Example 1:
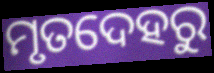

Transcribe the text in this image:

ମୃତଦେହରୁ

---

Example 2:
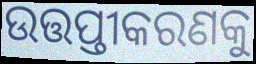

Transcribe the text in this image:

ଉତ୍ତପ୍ତୀକରଣକୁ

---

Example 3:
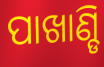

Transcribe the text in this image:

ପାଖାଣ୍ଡି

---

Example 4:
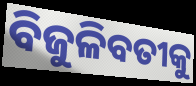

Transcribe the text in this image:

ବିଜୁଳିବତୀକୁ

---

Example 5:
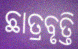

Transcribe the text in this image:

ଛାତ୍ରବୃତ୍ତି